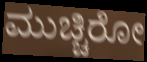
ಮುಚ್ಚಿರೋ